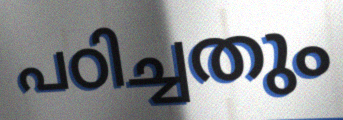
പഠിച്ചതും